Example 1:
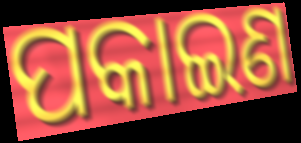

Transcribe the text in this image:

ପକାଇଣ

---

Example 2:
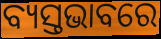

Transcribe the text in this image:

ବ୍ୟସ୍ତଭାବରେ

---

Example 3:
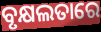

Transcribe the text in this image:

ବୃକ୍ଷଲତାରେ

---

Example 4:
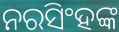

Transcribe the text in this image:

ନରସିଂହଙ୍କ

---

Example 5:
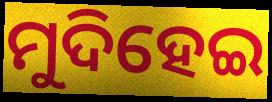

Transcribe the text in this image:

ମୁଦିହେଇ